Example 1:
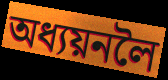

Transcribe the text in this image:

অধ্যয়নলৈ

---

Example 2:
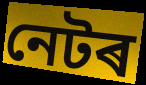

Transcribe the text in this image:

নেটৰ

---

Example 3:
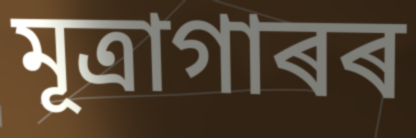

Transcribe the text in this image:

মূত্ৰাগাৰৰ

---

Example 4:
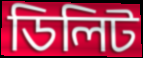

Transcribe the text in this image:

ডিলিট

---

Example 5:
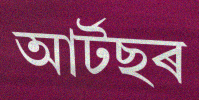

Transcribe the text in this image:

আৰ্টছৰ